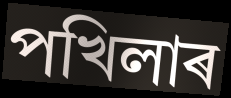
পখিলাৰ